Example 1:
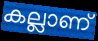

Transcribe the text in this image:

കല്ലാണ്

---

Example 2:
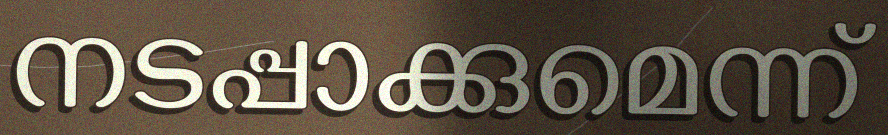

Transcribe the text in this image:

നടപ്പാക്കുമെന്ന്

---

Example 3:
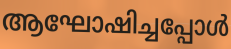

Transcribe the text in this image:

ആഘോഷിച്ചപ്പോൾ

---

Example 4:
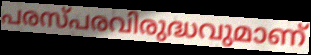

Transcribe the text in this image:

പരസ്പരവിരുദ്ധവുമാണ്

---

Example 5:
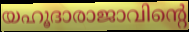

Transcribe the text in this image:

യഹൂദാരാജാവിന്റെ